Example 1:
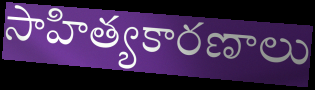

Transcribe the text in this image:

సాహిత్యకారణాలు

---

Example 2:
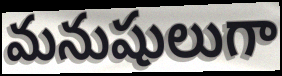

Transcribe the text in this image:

మనుషులుగా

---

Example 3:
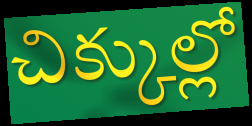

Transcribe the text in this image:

చిక్కుల్లో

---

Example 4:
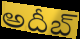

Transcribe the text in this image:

అదీబ్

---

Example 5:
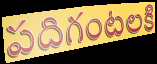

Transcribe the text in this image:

పదిగంటలకి